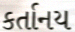
કર્તાનય